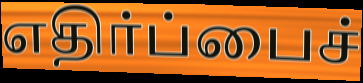
எதிர்ப்பைச்